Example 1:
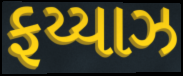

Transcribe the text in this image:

ફય્યાઝ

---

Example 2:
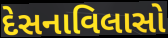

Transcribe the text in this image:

દેસનાવિલાસો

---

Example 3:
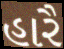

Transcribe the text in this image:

હારૈ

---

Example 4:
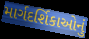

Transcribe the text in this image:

માર્ગદર્શિકાઓનું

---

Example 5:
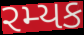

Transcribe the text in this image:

રમ્યક